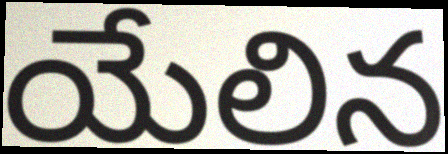
యేలిన